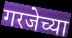
गरजेच्या